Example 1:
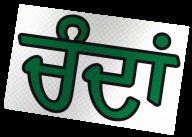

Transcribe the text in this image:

ਚੰਦਾਂ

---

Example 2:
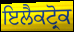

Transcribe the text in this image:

ਇਲੈਕਟ੍ਰੋਕ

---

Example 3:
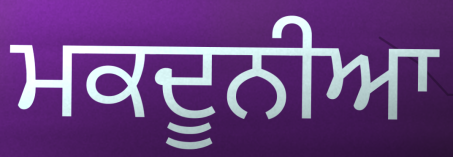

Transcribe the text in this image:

ਮਕਦੂਨੀਆ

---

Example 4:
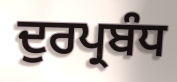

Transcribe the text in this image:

ਦੁਰਪ੍ਰਬੰਧ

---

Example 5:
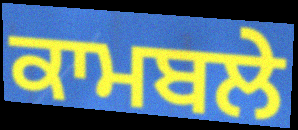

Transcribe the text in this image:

ਕਾਮਬਲੇ